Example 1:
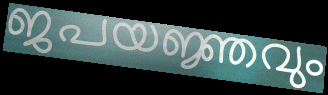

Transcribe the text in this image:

ജപയജ്ഞവും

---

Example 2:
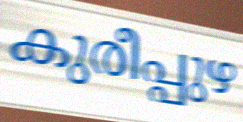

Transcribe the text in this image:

കുരീപ്പുഴ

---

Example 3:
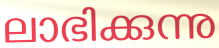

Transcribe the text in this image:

ലാഭിക്കുന്നു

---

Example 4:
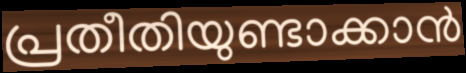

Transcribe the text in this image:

പ്രതീതിയുണ്ടാക്കാൻ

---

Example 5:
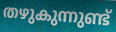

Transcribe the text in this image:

തഴുകുന്നുണ്ട്